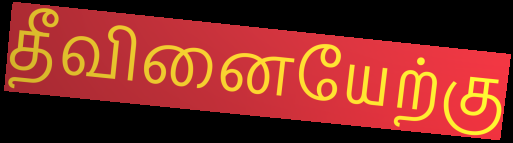
தீவினையேற்கு